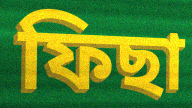
ফিছা